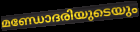
മണ്ഡോദരിയുടെയും